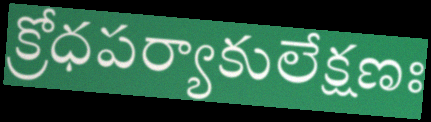
క్రోధపర్యాకులేక్షణః